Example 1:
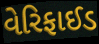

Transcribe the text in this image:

વેરિફાઈડ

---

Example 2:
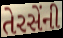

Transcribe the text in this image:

તેરસેંની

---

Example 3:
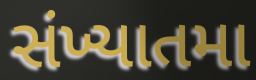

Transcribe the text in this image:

સંખ્યાતમા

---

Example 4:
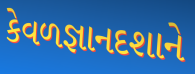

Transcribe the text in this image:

કેવળજ્ઞાનદશાને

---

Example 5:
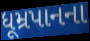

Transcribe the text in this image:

ધૂમ્રપાનના